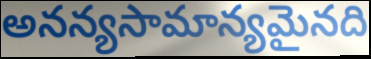
అనన్యసామాన్యమైనది